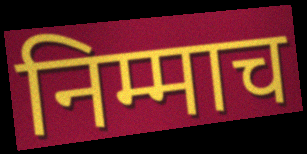
निम्माच